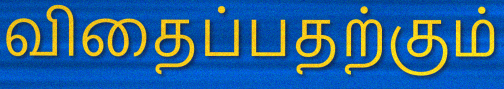
விதைப்பதற்கும்